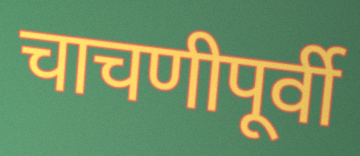
चाचणीपूर्वी